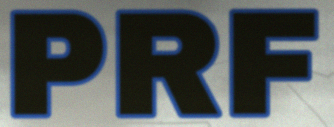
PRF